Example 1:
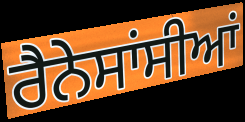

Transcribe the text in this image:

ਰੈਨੇਸਾਂਸੀਆਂ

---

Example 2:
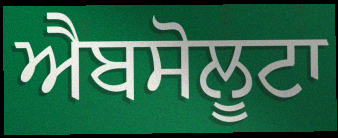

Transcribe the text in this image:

ਐਬਸੋਲੂਟਾ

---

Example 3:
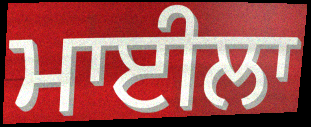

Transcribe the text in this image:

ਮਾਈਲਾ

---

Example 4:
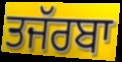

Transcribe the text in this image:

ਤਜੱਰਬਾ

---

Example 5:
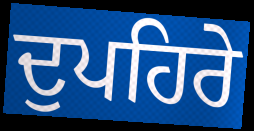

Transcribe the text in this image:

ਦੁਪਹਿਰੇ